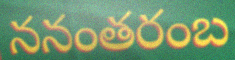
ననంతరంబ